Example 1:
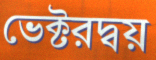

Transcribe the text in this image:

ভেক্টরদ্বয়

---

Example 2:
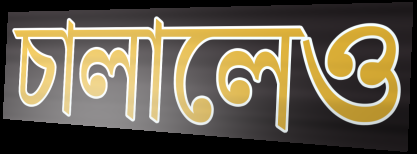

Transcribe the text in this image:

চালালেও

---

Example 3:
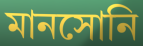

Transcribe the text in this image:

মানসোনি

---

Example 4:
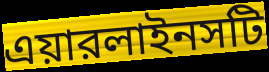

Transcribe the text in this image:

এয়ারলাইনসটি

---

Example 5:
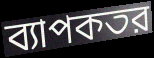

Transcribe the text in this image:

ব্যাপকতর